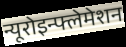
न्यूरोइन्फ्लेमेशन